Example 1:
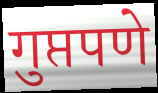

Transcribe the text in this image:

गुप्तपणे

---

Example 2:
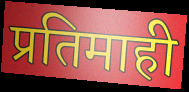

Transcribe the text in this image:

प्रतिमाही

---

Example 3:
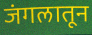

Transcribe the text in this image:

जंगलातून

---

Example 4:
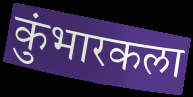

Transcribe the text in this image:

कुंभारकला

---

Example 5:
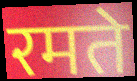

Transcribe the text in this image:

रमते